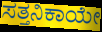
ಸತ್ತನಿಕಾಯೇ